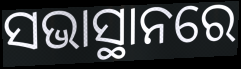
ସଭାସ୍ଥାନରେ